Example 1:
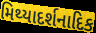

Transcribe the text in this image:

મિથ્યાદર્શનાદિક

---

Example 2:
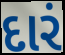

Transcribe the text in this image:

દારં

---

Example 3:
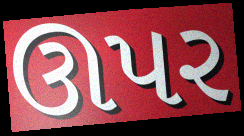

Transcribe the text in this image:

ઊપર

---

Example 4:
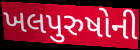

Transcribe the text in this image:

ખલપુરુષોની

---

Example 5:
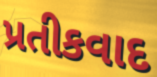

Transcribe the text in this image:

પ્રતીકવાદ